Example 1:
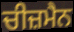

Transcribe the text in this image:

ਚੀਜ਼ਮੈਨ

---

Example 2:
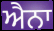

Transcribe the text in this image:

ਐਨਾ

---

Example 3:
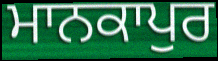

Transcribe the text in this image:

ਮਾਨਕਾਪੁਰ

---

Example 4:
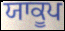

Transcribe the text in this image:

ਯਾਕੂਪ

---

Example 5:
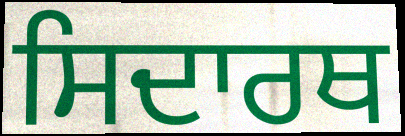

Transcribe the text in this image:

ਸਿਦਾਰਥ